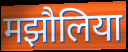
मझौलिया